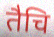
तैचि